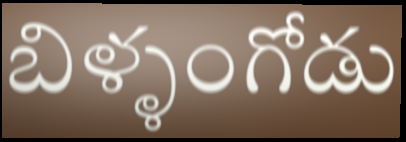
బిళ్ళంగోడు